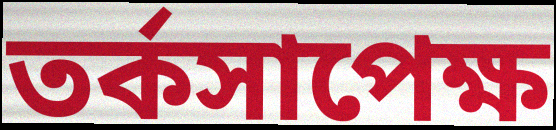
তর্কসাপেক্ষ